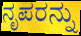
ನೃಪರನ್ನು